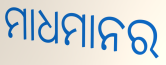
ମାଧମାନର